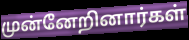
முன்னேறினார்கள்